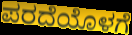
ಪರದೆಯೊಳಗೆ